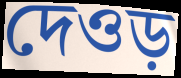
দেওড়